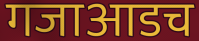
गजाआडच